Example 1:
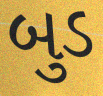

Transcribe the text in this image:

બુડ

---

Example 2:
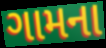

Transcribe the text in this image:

ગામના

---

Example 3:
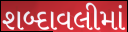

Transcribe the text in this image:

શબ્દાવલીમાં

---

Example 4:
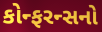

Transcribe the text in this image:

કોન્ફરન્સનો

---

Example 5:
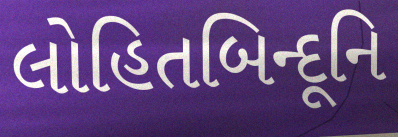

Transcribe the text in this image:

લોહિતબિન્દૂનિ